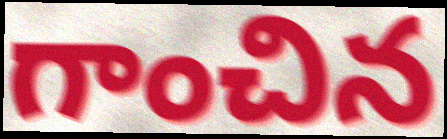
గాంచిన